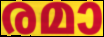
രമാ